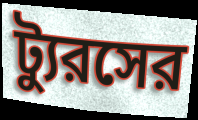
ট্যুরসের